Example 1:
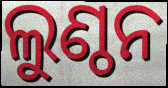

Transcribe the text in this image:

ଲୁଣ୍ଠନ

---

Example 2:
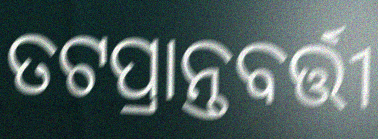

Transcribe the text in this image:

ତଟପ୍ରାନ୍ତବର୍ତ୍ତୀ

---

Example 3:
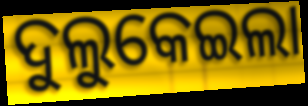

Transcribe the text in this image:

ଦୁଲୁକେଇଲା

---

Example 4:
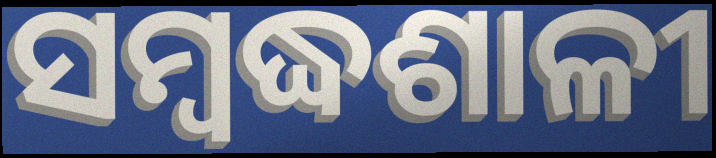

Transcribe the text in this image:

ସମ୍ବଦ୍ଧଶାଳୀ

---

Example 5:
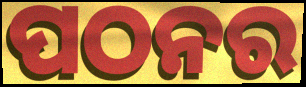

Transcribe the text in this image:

ପଠନର